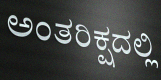
ಅಂತರಿಕ್ಷದಲ್ಲಿ